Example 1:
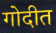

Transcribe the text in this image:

गोदीत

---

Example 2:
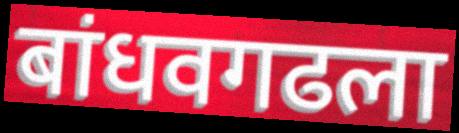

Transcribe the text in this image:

बांधवगढला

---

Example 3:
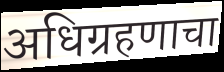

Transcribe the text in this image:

अधिग्रहणाचा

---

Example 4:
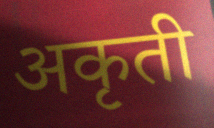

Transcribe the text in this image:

अकृती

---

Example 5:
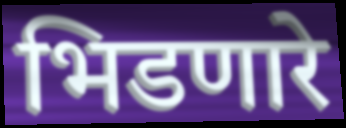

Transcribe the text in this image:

भिडणारे